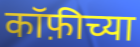
कॉफ़ीच्या